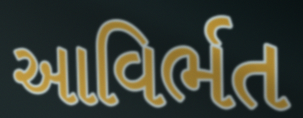
આવિર્ભત